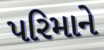
પરિમાને